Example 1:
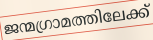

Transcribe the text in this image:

ജന്മഗ്രാമത്തിലേക്ക്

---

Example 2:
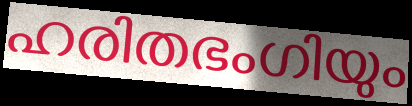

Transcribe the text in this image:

ഹരിതഭംഗിയും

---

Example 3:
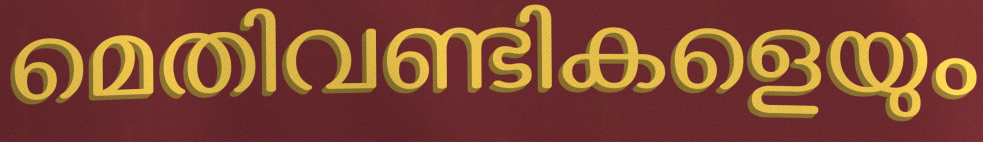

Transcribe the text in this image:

മെതിവണ്ടികളെയും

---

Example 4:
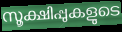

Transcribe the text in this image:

സൂക്ഷിപ്പുകളുടെ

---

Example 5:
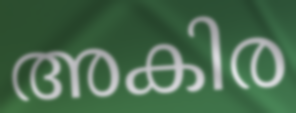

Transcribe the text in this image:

അകിര